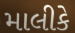
માલીકે